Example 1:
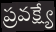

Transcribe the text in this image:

ప్రవక్ష్యే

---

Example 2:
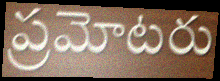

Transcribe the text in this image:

ప్రమోటరు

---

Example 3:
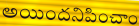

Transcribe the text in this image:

అయిందనిపించాం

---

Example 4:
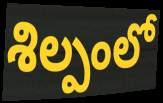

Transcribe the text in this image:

శిల్పంలో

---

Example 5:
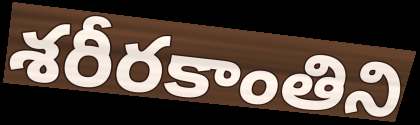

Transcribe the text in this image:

శరీరకాంతిని